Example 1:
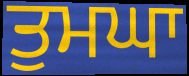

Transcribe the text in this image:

ਤੁਮਘਾ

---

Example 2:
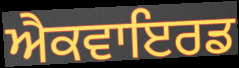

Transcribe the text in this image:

ਐਕਵਾਇਰਡ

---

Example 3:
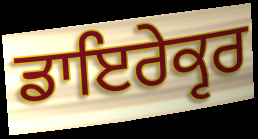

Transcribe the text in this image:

ਡਾਇਰੇਕ੍ਟਰ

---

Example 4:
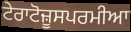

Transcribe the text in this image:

ਟੇਰਾਟੋਜ਼ੂਸਪਰਮੀਆ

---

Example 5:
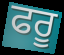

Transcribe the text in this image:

ਫਰੂ